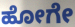
ಹೋಗೇ